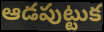
ఆడపుట్టుక